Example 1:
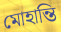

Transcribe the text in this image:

মোহান্তি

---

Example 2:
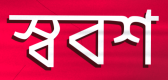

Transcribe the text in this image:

স্ববশ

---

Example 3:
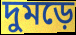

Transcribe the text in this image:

দুমড়ে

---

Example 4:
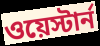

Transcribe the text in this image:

ওয়েস্টার্ন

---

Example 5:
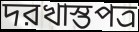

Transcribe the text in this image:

দরখাস্তপত্র